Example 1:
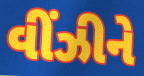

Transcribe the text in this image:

વીંઝીને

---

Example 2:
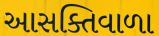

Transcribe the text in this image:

આસક્તિવાળા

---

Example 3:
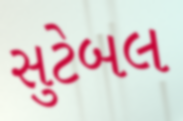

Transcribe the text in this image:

સુટેબલ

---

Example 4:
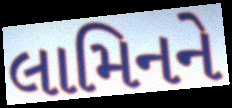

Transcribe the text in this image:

લામિનને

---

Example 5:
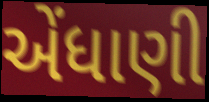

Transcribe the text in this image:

એંધાણી